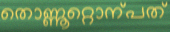
തൊണ്ണൂറ്റൊന്പത്